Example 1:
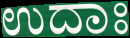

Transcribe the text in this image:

ಉದಾಃ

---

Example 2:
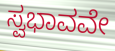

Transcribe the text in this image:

ಸ್ವಭಾವವೇ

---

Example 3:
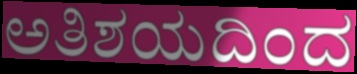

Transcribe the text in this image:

ಅತಿಶಯದಿಂದ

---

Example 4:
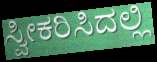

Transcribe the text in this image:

ಸ್ವೀಕರಿಸಿದಲ್ಲಿ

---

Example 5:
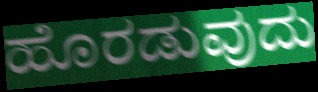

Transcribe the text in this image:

ಹೊರಡುವುದು